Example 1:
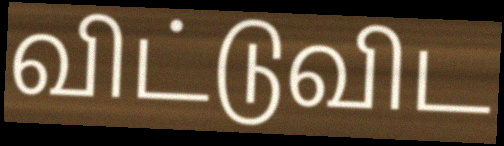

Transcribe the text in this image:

விட்டுவிட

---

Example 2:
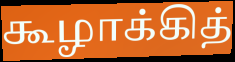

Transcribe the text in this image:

கூழாக்கித்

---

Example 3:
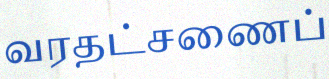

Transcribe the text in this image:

வரதட்சணைப்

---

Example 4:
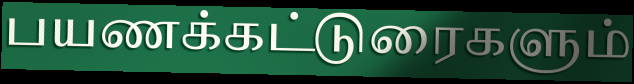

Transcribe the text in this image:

பயணக்கட்டுரைகளும்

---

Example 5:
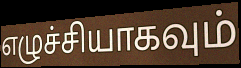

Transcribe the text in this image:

எழுச்சியாகவும்